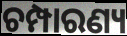
ଚମ୍ପାରଣ୍ୟ